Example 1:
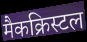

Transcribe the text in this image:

मैकक्रिस्टल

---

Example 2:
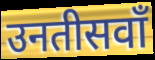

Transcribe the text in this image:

उनतीसवाँ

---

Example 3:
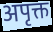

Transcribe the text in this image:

अपृक्त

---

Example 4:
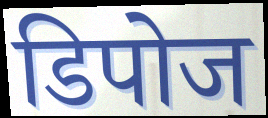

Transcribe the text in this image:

डिपोज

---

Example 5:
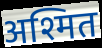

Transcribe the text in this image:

अश्मित